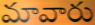
మావారు